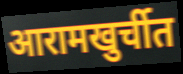
आरामखुर्चीत